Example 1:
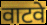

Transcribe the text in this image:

वाटवे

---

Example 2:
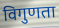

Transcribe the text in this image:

विगुणता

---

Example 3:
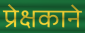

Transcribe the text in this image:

प्रेक्षकाने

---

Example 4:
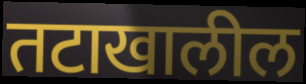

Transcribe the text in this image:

तटाखालील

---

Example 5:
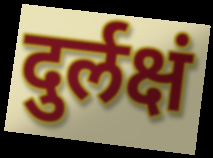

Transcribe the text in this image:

दुर्लक्षं